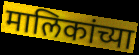
मालिकांच्या